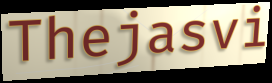
Thejasvi